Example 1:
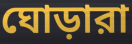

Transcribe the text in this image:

ঘোড়ারা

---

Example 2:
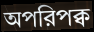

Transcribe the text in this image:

অপরিপক্ব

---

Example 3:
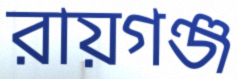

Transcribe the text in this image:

রায়গঞ্জ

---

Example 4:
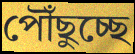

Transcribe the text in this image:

পৌঁছুচ্ছে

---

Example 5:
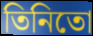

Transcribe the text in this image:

তিনিতো